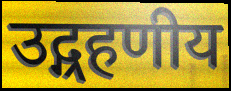
उद्ग्रहणीय